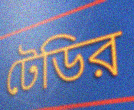
টেডির